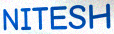
NITESH